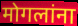
मोगलांना